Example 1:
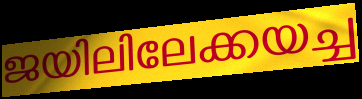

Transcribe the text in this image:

ജയിലിലേക്കയച്ച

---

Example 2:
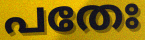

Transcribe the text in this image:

പതേഃ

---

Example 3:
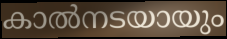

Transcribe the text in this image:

കാൽനടയായും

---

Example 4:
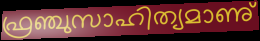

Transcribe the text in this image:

ഫ്രഞ്ചുസാഹിത്യമാണു്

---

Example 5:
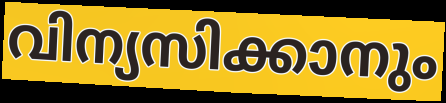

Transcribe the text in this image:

വിന്യസിക്കാനും